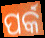
ପର୍କ